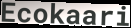
Ecokaari